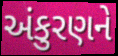
અંકુરણને